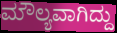
ಮೌಲ್ಯವಾಗಿದ್ದು